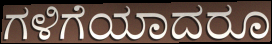
ಗಳಿಗೆಯಾದರೂ